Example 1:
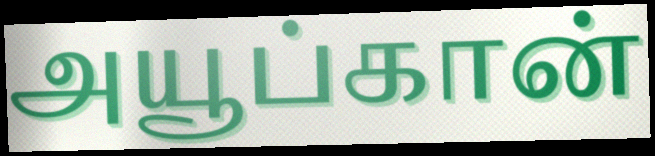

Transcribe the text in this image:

அயூப்கான்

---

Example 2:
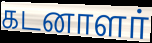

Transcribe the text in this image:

கடனாளர்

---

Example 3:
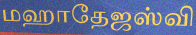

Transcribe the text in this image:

மஹாதேஜஸ்வி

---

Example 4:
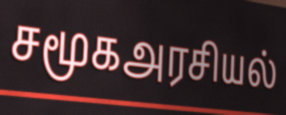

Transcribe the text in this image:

சமூகஅரசியல்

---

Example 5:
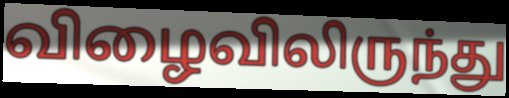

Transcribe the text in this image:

விழைவிலிருந்து